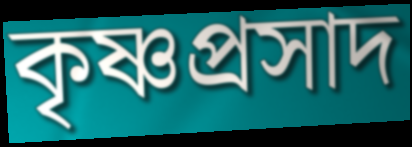
কৃষ্ণপ্রসাদ